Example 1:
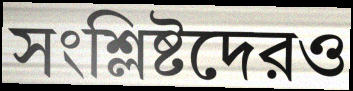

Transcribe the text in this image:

সংশ্লিষ্টদেরও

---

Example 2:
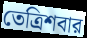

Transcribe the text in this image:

তেত্রিশবার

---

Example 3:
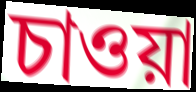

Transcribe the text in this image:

চাওয়া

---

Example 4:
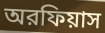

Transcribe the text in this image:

অরফিয়াস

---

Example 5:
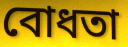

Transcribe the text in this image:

বোধতা